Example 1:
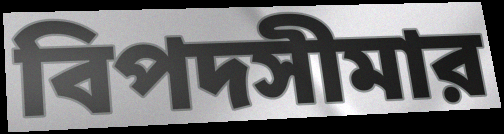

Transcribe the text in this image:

বিপদসীমার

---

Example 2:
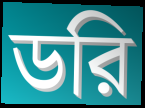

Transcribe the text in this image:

ডরি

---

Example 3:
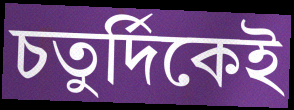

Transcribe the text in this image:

চতুর্দিকেই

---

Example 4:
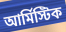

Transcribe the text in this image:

আর্মিস্টিক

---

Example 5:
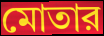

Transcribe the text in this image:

মোতার